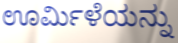
ಊರ್ಮಿಳೆಯನ್ನು